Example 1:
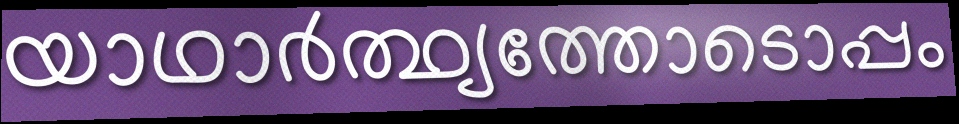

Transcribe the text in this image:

യാഥാർത്ഥ്യത്തോടൊപ്പം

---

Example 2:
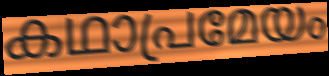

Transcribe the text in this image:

കഥാപ്രമേയം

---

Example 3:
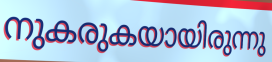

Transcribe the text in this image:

നുകരുകയായിരുന്നു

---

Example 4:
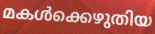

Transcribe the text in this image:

മകൾക്കെഴുതിയ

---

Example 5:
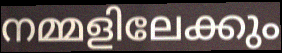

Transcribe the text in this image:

നമ്മളിലേക്കും